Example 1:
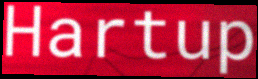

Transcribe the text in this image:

Hartup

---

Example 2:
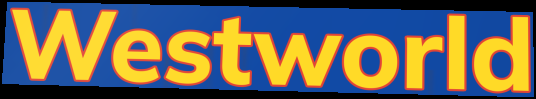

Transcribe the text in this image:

Westworld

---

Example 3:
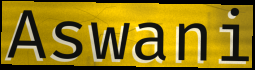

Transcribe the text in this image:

Aswani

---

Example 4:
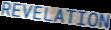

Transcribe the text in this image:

REVELATION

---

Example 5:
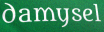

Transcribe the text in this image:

damysel